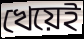
খেয়েই